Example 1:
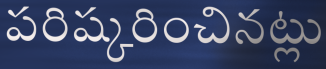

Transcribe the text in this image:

పరిష్కరించినట్లు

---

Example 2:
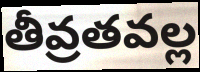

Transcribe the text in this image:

తీవ్రతవల్ల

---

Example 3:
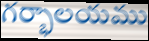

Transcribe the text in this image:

గర్భాలయము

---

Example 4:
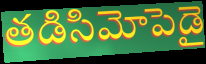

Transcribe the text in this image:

తడిసిమోపెడై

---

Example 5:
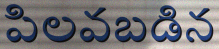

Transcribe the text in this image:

పిలవబడిన